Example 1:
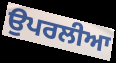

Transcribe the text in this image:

ਉਪਰਲੀਆ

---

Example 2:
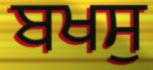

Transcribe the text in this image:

ਬਖਸੁ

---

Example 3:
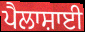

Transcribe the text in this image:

ਪੈਲਾਸ਼ਾਈ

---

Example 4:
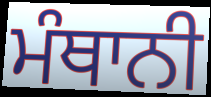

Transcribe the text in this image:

ਮੰਥਾਨੀ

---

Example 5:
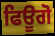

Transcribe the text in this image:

ਫਿਊਗੋ